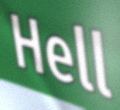
Hell